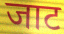
जाट